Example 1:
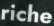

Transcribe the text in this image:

riche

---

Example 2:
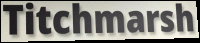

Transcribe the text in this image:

Titchmarsh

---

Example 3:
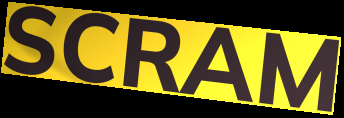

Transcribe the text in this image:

SCRAM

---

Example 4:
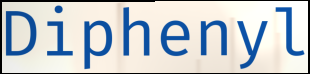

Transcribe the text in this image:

Diphenyl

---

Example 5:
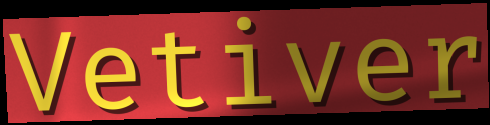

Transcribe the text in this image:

Vetiver